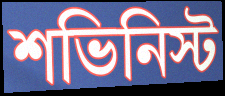
শভিনিস্ট